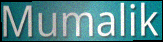
Mumalik